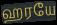
ஹரயே